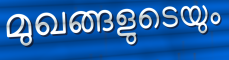
മുഖങ്ങളുടെയും